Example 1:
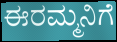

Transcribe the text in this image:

ಈರಮ್ಮನಿಗೆ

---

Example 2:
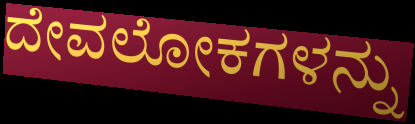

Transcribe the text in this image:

ದೇವಲೋಕಗಳನ್ನು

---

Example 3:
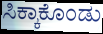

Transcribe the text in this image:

ಸಿಕ್ಕಾಕೊಂಡು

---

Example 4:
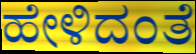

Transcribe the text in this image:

ಹೇಳಿದಂತೆ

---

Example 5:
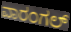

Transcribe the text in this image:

ವಾರಂಗಲ್